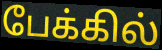
பேக்கில்